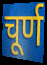
चूर्ण